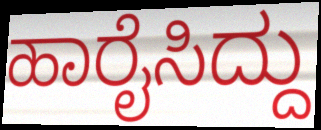
ಹಾರೈಸಿದ್ದು